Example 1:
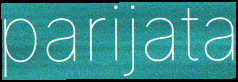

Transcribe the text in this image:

parijata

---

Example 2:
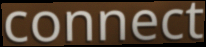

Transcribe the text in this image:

connect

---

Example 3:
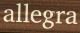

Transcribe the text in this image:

allegra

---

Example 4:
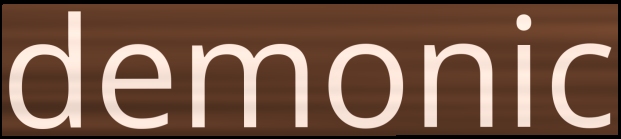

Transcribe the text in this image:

demonic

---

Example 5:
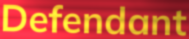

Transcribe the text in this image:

Defendant